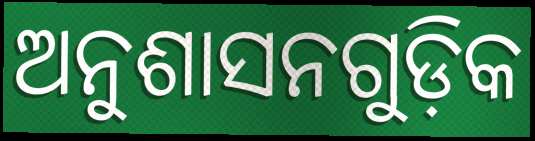
ଅନୁଶାସନଗୁଡ଼ିକ